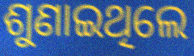
ଶୁଣାଇଥିଲେ